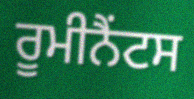
ਰੂਮੀਨੈਂਟਸ